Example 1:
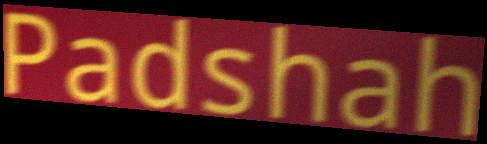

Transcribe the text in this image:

Padshah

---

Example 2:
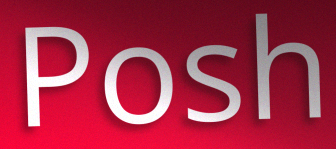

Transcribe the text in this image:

Posh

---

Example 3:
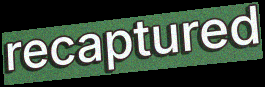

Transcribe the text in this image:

recaptured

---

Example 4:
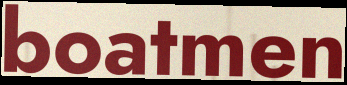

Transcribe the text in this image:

boatmen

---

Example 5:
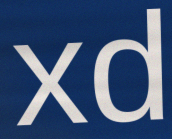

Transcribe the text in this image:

xd